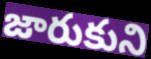
జారుకుని